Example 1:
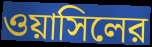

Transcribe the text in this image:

ওয়াসিলের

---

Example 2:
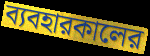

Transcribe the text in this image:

ব্যবহারকালের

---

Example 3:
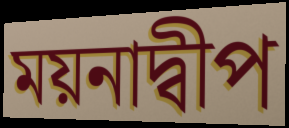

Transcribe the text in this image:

ময়নাদ্বীপ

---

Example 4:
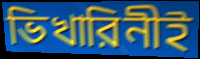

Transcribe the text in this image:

ভিখারিনীই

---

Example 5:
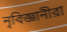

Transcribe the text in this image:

নৃবিজ্ঞানীরা